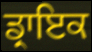
ਡ੍ਰਾਇਕ